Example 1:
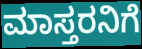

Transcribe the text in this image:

ಮಾಸ್ತರನಿಗೆ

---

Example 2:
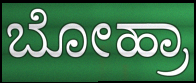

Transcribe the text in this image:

ಬೋಹ್ರಾ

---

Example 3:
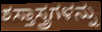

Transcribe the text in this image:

ಶಸ್ತಾಸ್ತ್ರಗಳನ್ನು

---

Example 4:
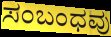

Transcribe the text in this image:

ಸಂಬಂಧವು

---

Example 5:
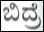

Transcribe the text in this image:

ಬಿದ್ರೆ